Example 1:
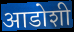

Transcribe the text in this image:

आडोशी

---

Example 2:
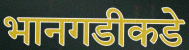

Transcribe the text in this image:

भानगडीकडे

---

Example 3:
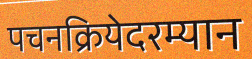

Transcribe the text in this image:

पचनक्रियेदरम्यान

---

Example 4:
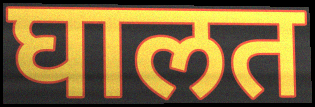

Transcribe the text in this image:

घालत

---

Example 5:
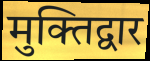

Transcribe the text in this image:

मुक्तिद्वार